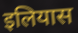
इलियास